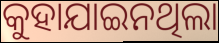
କୁହାଯାଇନଥିଲା